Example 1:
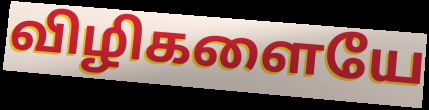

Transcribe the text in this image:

விழிகளையே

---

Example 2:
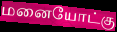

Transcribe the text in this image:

மனையோட்கு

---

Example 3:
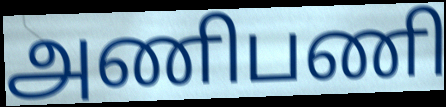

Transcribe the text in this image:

அணிபணி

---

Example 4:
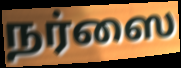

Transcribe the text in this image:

நர்ஸை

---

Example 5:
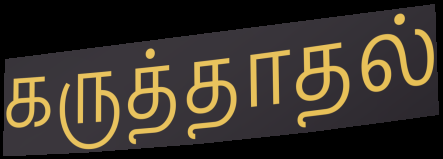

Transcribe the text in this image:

கருத்தாதல்